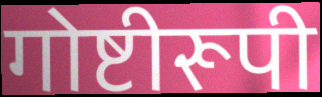
गोष्टीरूपी